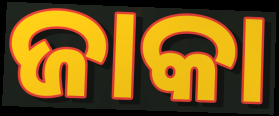
ଜାକା